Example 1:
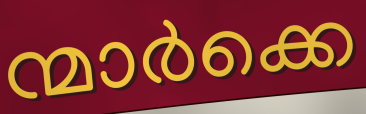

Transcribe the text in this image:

ന്മാർക്കെ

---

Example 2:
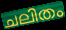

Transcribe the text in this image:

ചലിതം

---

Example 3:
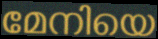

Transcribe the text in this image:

മേനിയെ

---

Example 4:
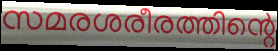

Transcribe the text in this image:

സമരശരീരത്തിന്റെ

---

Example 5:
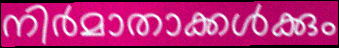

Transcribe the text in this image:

നിർമാതാക്കൾക്കും